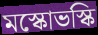
মস্কোভস্কি